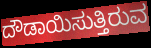
ದೌಡಾಯಿಸುತ್ತಿರುವ